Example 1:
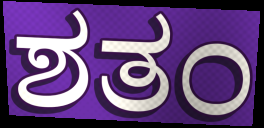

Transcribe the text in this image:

ಶತಂ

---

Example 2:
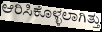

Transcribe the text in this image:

ಆರಿಸಿಕೊಳ್ಳಲಾಗಿತ್ತು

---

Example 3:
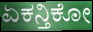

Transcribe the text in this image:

ಏಕನ್ತಿಕೋ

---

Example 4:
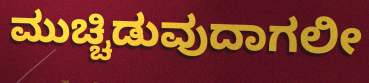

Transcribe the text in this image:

ಮುಚ್ಚಿಡುವುದಾಗಲೀ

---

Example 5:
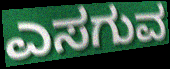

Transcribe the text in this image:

ಎಸಗುವ